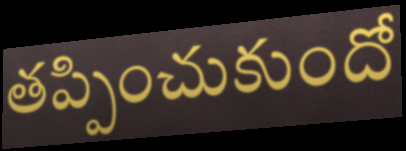
తప్పించుకుందో